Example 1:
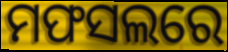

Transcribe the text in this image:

ମଫସଲରେ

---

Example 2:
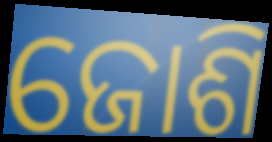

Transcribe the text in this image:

ଜୋଶି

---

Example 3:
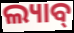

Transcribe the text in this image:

ଲ୍ୟାବ୍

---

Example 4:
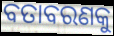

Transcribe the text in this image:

ବତାବରଣକୁ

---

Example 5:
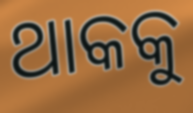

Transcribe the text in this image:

ଥାକକୁ